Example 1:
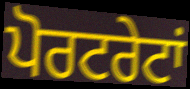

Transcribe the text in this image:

ਪੋਰਟਰੇਟਾਂ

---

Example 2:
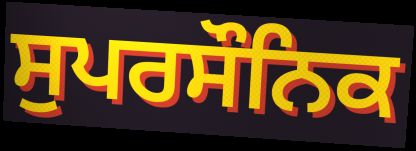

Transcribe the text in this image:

ਸੁਪਰਸੌਨਿਕ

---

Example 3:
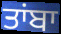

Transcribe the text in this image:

ਤਾਂਬਾ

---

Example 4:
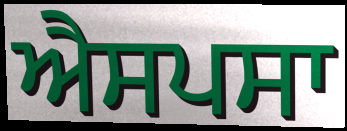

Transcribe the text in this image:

ਐਸਪਸਾ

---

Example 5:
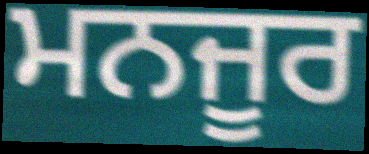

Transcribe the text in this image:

ਮਨਜੂਰ